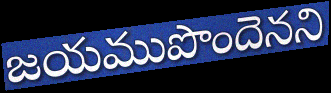
జయముపొందెనని